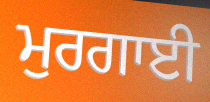
ਮੁਰਗਾਈ